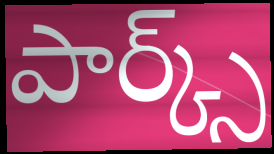
పార్క్స్